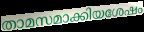
താമസമാക്കിയശേഷം